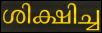
ശിക്ഷിച്ച